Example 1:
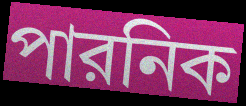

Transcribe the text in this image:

পারনিক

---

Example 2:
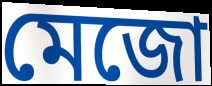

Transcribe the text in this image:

মেজো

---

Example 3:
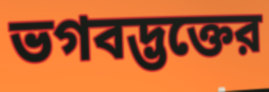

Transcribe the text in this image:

ভগবদ্ভক্তের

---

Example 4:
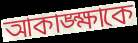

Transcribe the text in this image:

আকাঙ্ক্ষাকে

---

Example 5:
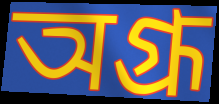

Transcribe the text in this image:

অগ্রূ